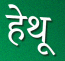
हेथू